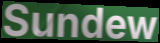
Sundew